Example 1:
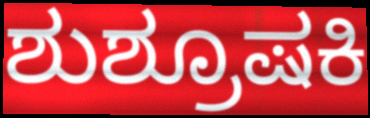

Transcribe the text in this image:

ಶುಶ್ರೂಷಕಿ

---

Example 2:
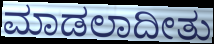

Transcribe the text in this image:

ಮಾಡಲಾದೀತು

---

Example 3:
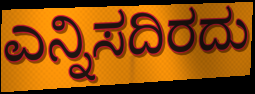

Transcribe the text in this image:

ಎನ್ನಿಸದಿರದು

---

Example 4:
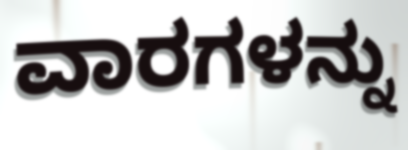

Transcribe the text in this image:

ವಾರಗಳನ್ನು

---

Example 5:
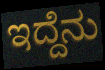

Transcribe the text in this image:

ಇದ್ದೆನು